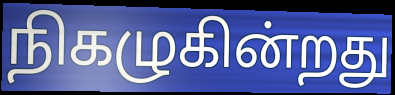
நிகழுகின்றது